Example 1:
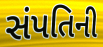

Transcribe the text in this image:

સંપતિની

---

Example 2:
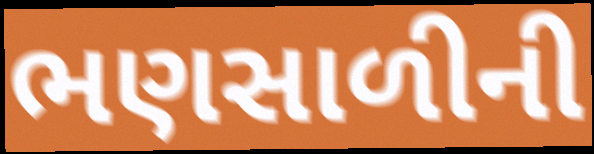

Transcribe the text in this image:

ભણસાળીની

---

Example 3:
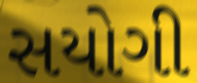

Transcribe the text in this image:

સયોગી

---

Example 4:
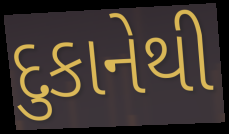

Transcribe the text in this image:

દુકાનેથી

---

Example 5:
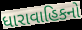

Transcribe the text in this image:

ધારાવાહિકનો